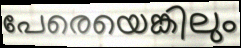
പേരെയെങ്കിലും